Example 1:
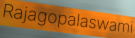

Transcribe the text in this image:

Rajagopalaswami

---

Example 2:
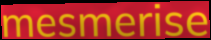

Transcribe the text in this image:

mesmerise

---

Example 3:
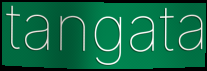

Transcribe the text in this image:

tangata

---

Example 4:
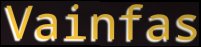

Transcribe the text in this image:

Vainfas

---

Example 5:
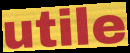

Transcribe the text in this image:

utile